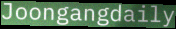
Joongangdaily